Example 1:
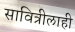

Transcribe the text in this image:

सावित्रीलाही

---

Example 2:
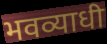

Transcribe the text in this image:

भवव्याधी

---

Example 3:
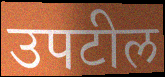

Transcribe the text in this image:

उपटील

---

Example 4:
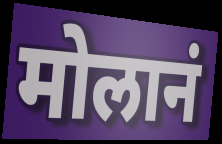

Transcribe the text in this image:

मोलानं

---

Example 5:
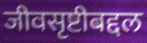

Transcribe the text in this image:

जीवसृष्टीबद्दल